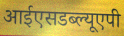
आईएसडब्ल्यूएपी